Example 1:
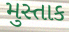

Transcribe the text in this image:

મુસ્તાક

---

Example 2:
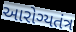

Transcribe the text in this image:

આરોગ્યતંત્ર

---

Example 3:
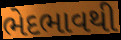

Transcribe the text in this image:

ભેદભાવથી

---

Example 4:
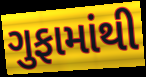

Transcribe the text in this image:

ગુફામાંથી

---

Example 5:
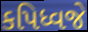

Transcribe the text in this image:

કપિધ્વજે